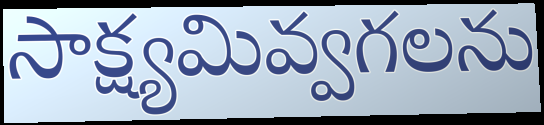
సాక్ష్యమివ్వగలను